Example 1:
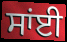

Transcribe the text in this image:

ਸਾਂਈ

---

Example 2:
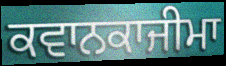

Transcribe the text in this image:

ਕਵਾਨਕਾਜੀਮਾ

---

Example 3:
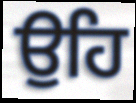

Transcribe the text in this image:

ਉਹਿ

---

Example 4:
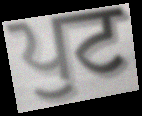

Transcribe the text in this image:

ਪੁਟ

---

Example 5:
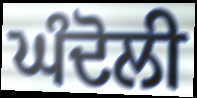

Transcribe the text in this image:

ਘੰਦੋਲੀ